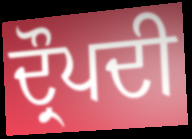
ਦ੍ਰੌਪਦੀ